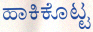
ಹಾಕಿಕೊಟ್ಟ